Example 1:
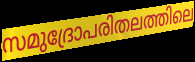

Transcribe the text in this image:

സമുദ്രോപരിതലത്തിലെ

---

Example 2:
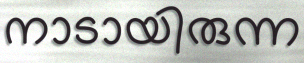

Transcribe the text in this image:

നാടായിരുന്ന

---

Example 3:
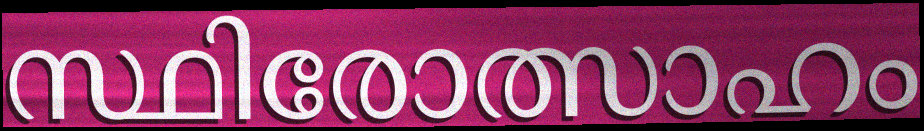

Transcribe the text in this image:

സ്ഥിരോത്സാഹം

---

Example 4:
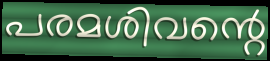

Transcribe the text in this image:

പരമശിവന്റെ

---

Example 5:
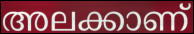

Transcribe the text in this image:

അലക്കാണ്